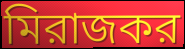
মিরাজকর